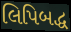
લિપિબદ્ધ